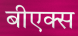
बीएक्स